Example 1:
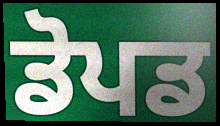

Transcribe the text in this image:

ਡੋਪਡ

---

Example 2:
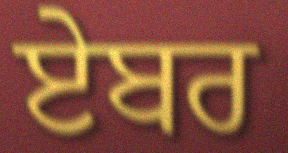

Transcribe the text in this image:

ਏਬਰ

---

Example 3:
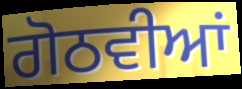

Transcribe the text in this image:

ਗੋਠਵੀਆਂ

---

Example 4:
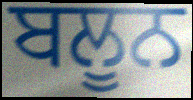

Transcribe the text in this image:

ਬਲੂਨ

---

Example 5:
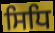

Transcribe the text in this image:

ਸਿਧਿ